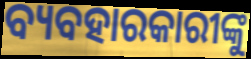
ବ୍ୟବହାରକାରୀଙ୍କୁ